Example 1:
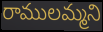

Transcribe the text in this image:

రాములమ్మని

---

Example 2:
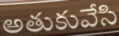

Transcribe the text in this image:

అతుకువేసి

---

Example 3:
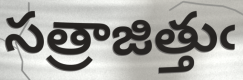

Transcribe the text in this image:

సత్రాజిత్తుఁ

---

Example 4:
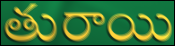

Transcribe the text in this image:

తురాయి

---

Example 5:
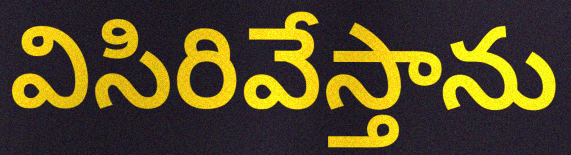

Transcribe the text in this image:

విసిరివేస్తాను